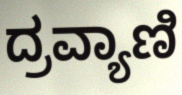
ದ್ರವ್ಯಾಣಿ